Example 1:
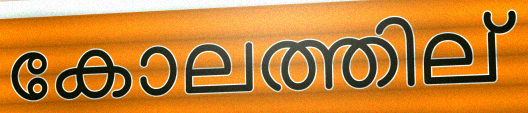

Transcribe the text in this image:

കോലത്തില്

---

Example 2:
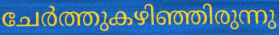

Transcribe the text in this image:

ചേർത്തുകഴിഞ്ഞിരുന്നു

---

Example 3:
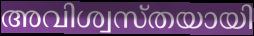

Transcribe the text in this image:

അവിശ്വസ്തയായി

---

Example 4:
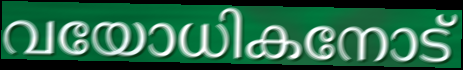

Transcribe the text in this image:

വയോധികനോട്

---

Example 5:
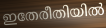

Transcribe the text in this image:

ഇതേരീതിയിൽ